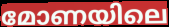
മോണയിലെ